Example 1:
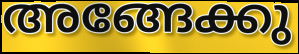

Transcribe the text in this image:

അങ്ങേക്കു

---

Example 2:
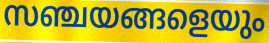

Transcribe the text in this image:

സഞ്ചയങ്ങളെയും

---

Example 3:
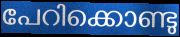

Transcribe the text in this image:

പേറിക്കൊണ്ടു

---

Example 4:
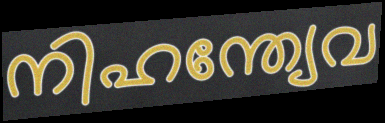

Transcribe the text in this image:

നിഹന്ത്യേവ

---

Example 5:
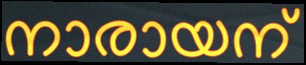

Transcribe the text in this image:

നാരായന്